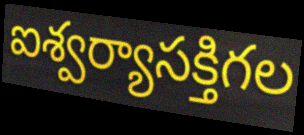
ఐశ్వర్యాసక్తిగల